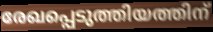
രേഖപ്പെടുത്തിയത്തിന്